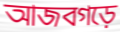
আজবগড়ে